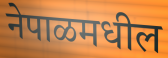
नेपाळमधील